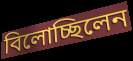
বিলোচ্ছিলেন